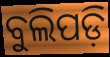
ବୁଲିପଡ଼ି